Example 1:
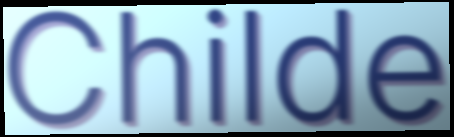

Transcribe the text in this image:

Childe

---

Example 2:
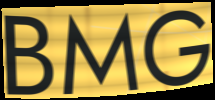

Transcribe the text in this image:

BMG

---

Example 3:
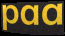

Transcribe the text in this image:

paa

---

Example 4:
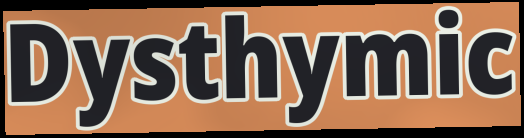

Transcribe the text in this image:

Dysthymic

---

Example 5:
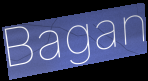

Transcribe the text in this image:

Bagan